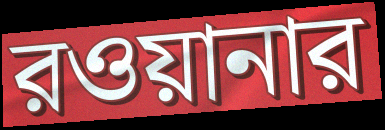
রওয়ানার